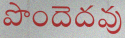
పొందెదవు